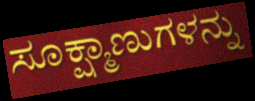
ಸೂಕ್ಷ್ಮಾಣುಗಳನ್ನು